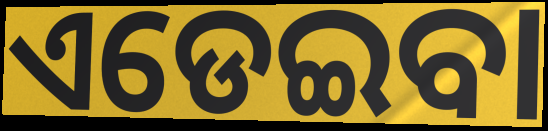
ଏଡେଇବା